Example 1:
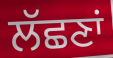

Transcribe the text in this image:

ਲੱਛਣਾਂ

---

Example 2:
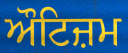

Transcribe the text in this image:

ਔਟਿਜ਼ਮ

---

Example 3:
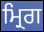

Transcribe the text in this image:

ਮ੍ਰਿਗ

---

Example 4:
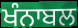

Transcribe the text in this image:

ਖੰਨਾਬਲ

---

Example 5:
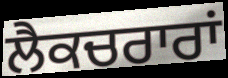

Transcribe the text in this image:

ਲੈਕਚਰਾਰਾਂ